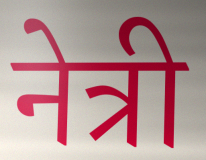
नेत्री